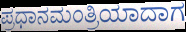
ಪ್ರಧಾನಮಂತ್ರಿಯಾದಾಗ